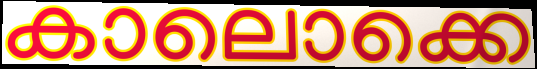
കാലൊക്കെ